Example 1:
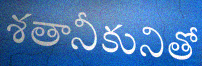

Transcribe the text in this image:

శతానీకునితో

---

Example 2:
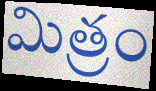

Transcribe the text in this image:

మిత్రం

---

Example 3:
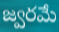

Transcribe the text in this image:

జ్వరమే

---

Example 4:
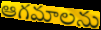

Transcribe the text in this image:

ఆగమాలను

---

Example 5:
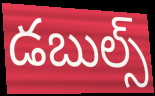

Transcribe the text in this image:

డబుల్స్